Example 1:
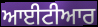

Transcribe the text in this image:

ਆਈਟੀਆਰ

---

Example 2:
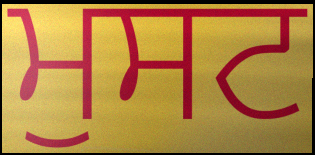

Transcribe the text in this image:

ਮੁਸਟ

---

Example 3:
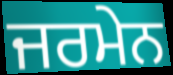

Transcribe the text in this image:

ਜਰਮੇਨ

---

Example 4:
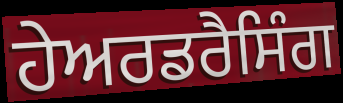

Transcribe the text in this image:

ਹੇਅਰਡਰੈਸਿੰਗ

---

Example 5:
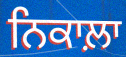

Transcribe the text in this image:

ਨਿਕਾਲ਼ਾ